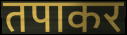
तपाकर